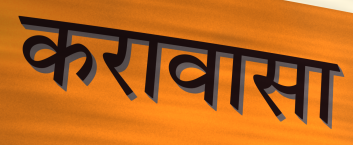
करावासा